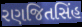
રણજિતસિંહ